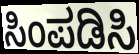
ಸಿಂಪಡಿಸಿ